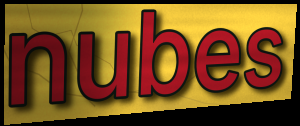
nubes